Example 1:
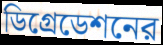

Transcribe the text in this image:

ডিগ্রেডেশনের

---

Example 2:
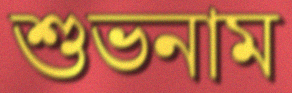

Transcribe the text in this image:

শুভনাম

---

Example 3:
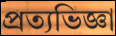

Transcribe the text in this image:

প্রত্যভিজ্ঞা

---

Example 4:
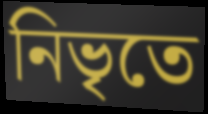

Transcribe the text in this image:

নিভৃতে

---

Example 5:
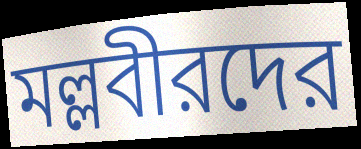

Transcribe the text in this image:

মল্লবীরদের